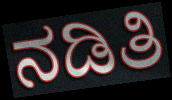
ನಡಿತಿ